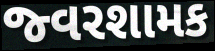
જ્વરશામક